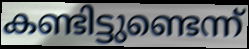
കണ്ടിട്ടുണ്ടെന്ന്